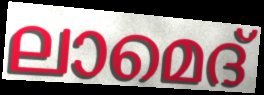
ലാമെദ്